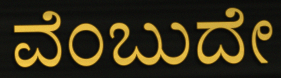
ವೆಂಬುದೇ